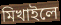
মিখাইলে